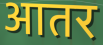
आतर